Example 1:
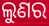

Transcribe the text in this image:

ଲୁଣର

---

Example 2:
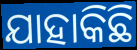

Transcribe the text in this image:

ଯାହାକିଛି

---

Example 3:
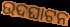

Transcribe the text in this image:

ଉଦଘାଟନ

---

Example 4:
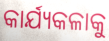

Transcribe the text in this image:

କାର୍ଯ୍ୟକଳାକୁ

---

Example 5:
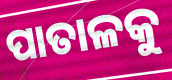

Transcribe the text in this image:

ପାତାଳକୁ